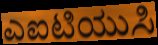
ಎಐಟಿಯುಸಿ